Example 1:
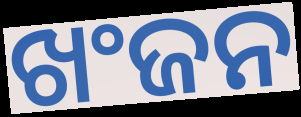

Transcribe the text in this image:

ଖଂଜନ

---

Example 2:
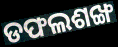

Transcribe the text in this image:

ଡଫଲଶଙ୍ଖ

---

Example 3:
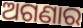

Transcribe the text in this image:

ଅଗଣାର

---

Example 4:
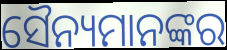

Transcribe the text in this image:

ସୈନ୍ୟମାନଙ୍କର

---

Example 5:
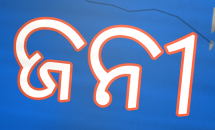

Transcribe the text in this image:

ଜନୀ